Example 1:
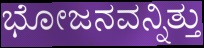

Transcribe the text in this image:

ಭೋಜನವನ್ನಿತ್ತು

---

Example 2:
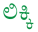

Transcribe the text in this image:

ಲಿಕ್ಕಿ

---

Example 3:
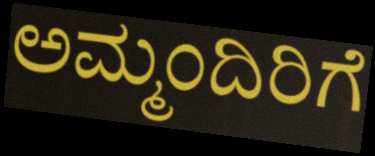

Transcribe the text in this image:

ಅಮ್ಮಂದಿರಿಗೆ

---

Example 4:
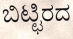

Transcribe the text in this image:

ಬಿಟ್ಟಿರದ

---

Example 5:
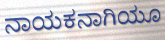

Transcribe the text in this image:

ನಾಯಕನಾಗಿಯೂ